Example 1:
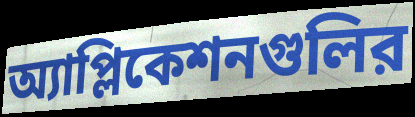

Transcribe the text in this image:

অ্যাপ্লিকেশনগুলির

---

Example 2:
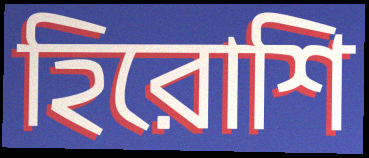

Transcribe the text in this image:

হিরোশি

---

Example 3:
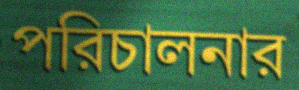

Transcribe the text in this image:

পরিচালনার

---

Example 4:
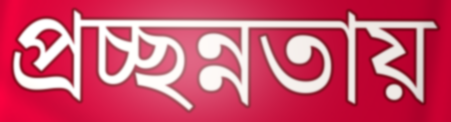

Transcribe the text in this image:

প্রচ্ছন্নতায়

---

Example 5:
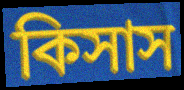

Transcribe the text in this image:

কিসাস